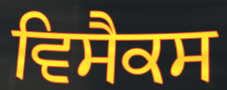
ਵਿਸੈਕਸ